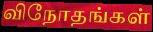
விநோதங்கள்